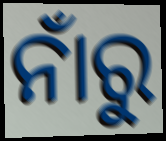
ନାଁରୁ